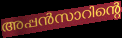
അപ്പൻസാറിന്റെ